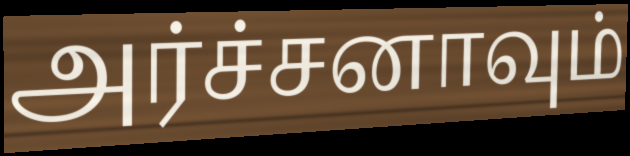
அர்ச்சனாவும்